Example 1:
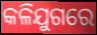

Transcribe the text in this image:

କଳିଯୁଗରେ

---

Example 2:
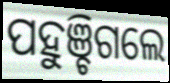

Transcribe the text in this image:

ପହୁଞ୍ଚିଗଲେ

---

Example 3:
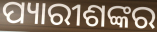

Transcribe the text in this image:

ପ୍ୟାରୀଶଙ୍କର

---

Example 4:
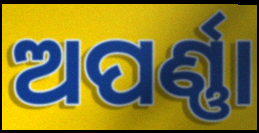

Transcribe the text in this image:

ଅପର୍ଣ୍ଣା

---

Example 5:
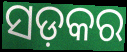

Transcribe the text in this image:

ସଡ଼କର